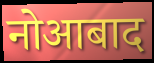
नोआबाद